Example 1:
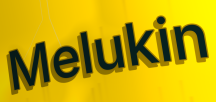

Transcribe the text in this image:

Melukin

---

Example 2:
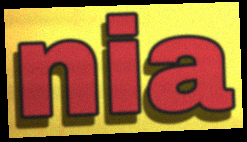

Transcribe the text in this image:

nia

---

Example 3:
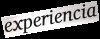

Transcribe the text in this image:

experiencia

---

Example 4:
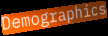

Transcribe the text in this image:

Demographics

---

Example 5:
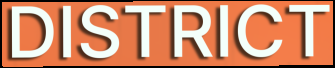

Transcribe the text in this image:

DISTRICT